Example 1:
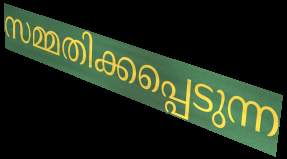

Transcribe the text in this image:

സമ്മതിക്കപ്പെടുന്ന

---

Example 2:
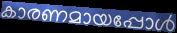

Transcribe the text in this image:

കാരണമായപ്പോൾ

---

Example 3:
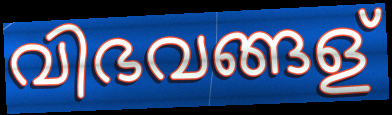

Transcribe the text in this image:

വിഭവങ്ങള്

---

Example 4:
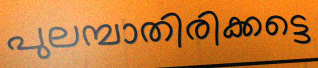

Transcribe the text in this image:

പുലമ്പാതിരിക്കട്ടെ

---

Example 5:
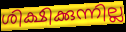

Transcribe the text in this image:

ശിക്ഷിക്കുന്നില്ല